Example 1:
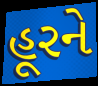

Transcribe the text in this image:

હૂરને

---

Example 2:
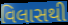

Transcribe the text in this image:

વિલાસથી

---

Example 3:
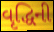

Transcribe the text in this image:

વૃદ્ધિની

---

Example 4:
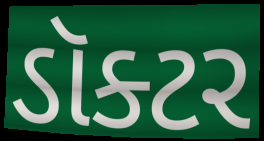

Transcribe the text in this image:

ડૉક્ટર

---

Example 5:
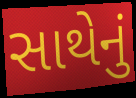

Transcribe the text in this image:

સાથેનું